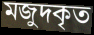
মজুদকৃত